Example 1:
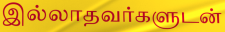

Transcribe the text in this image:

இல்லாதவர்களுடன்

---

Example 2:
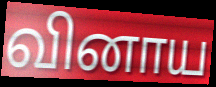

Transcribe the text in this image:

வினாய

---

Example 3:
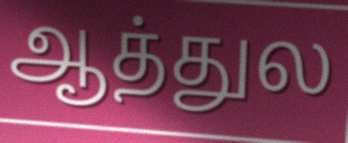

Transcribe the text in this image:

ஆத்துல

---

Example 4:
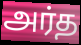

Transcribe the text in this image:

அர்த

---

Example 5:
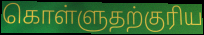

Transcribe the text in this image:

கொள்ளுதற்குரிய